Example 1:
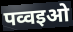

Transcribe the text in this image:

पव्वइओ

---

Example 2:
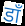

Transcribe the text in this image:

डॉं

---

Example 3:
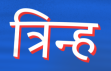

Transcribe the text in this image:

त्रिन्ह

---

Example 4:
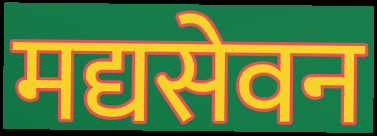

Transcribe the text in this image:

मद्यसेवन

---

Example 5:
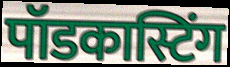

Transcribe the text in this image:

पॉडकास्टिंग